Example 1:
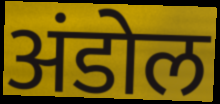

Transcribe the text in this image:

अंडोल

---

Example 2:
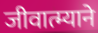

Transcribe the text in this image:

जीवात्म्याने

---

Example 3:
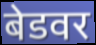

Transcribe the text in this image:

बेडवर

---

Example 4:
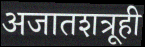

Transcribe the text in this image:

अजातशत्रूही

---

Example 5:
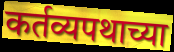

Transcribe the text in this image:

कर्तव्यपथाच्या